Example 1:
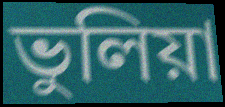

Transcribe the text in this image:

ভুলিয়া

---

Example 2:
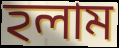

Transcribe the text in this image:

হলাম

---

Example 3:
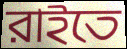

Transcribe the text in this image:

রাইতে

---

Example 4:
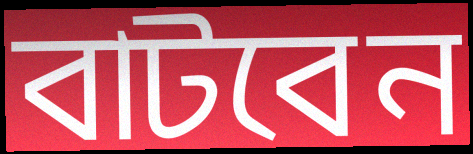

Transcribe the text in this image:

বাটবেন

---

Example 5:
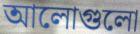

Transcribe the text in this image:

আলোগুলো